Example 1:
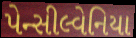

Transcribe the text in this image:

પેન્સીલ્વેનિયા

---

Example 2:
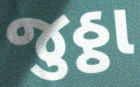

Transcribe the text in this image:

જુઠ્ઠા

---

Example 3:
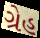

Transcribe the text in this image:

ગ્રેહ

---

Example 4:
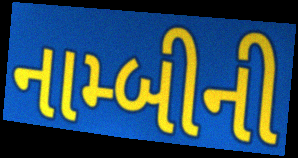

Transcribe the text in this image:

નામ્બીની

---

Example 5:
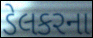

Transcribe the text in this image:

ડેલકરના